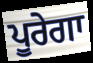
ਪੂਰੇਗਾ